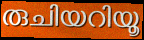
രുചിയറിയൂ